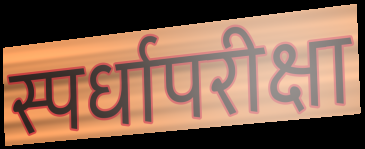
स्पर्धापरीक्षा